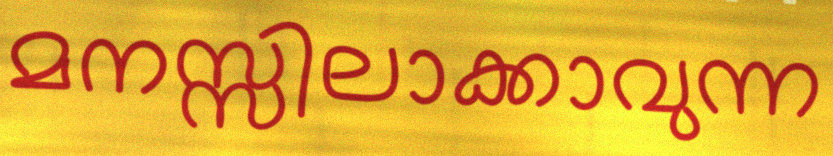
മനസ്സിലാക്കാവുന്ന